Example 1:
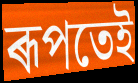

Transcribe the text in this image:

ৰূপতেই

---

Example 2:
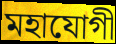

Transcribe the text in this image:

মহাযোগী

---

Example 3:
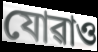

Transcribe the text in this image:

যোৱাও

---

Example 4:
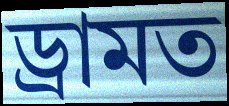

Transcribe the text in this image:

ড্ৰামত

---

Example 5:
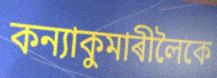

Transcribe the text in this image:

কন্যাকুমাৰীলৈকে